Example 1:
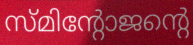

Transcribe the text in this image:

സ്മിന്റോജന്റെ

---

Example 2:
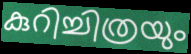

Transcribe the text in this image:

കുറിച്ചിത്രയും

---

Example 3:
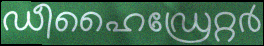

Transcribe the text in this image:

ഡീഹൈഡ്രേറ്റർ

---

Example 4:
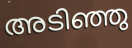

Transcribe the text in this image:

അടിഞ്ഞു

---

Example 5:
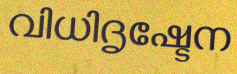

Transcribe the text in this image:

വിധിദൃഷ്ടേന